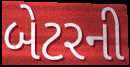
બેટરની